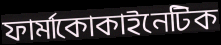
ফার্মাকোকাইনেটিক